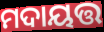
ମଦାୟତ୍ତ